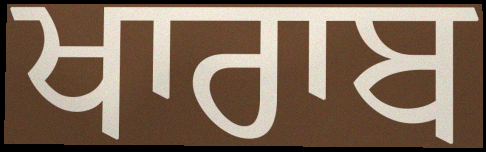
ਖਾਰਾਬ